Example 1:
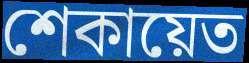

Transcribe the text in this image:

শেকায়েত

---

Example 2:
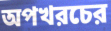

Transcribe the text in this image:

অপখরচের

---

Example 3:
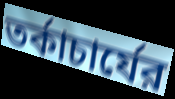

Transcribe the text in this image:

তর্কাচার্যের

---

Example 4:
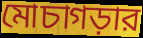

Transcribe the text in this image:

মোচাগড়ার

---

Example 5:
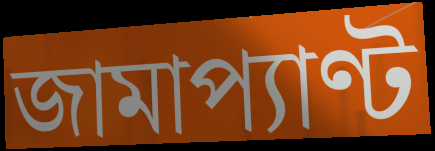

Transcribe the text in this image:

জামাপ্যাণ্ট